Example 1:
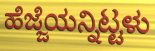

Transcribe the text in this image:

ಹೆಜ್ಜೆಯನ್ನಿಟ್ಟಳು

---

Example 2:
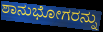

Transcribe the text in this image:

ಶಾನುಭೋಗರನ್ನು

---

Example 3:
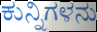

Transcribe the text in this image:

ಕುನ್ನಿಗಳನು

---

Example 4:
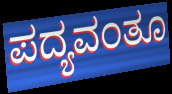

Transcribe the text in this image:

ಪದ್ಯವಂತೂ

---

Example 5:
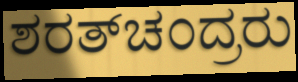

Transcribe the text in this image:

ಶರತ್‌ಚಂದ್ರರು